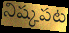
నిష్కపట